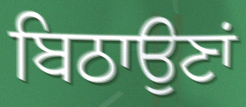
ਬਿਠਾਉਣਾਂ